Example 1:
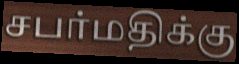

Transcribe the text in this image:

சபர்மதிக்கு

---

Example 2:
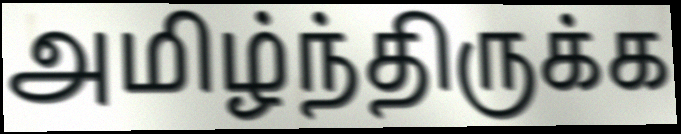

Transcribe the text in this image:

அமிழ்ந்திருக்க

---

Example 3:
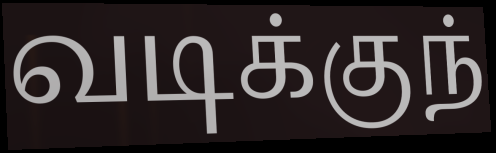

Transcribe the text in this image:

வடிக்குந்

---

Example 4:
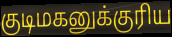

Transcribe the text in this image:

குடிமகனுக்குரிய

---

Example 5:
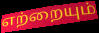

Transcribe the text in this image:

எற்றையும்